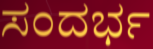
ಸಂದರ್ಭ